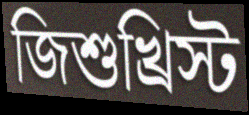
জিশুখ্রিস্ট